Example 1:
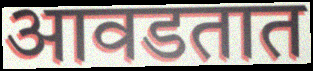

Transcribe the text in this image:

आवडतात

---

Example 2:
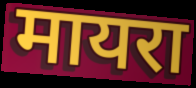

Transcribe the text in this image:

मायरा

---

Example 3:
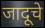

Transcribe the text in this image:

जादूचे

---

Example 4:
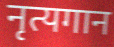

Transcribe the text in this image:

नृत्यगान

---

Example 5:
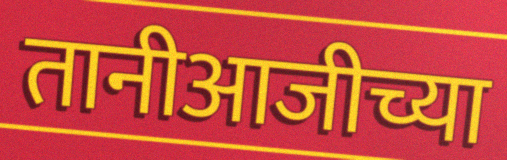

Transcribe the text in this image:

तानीआजीच्या